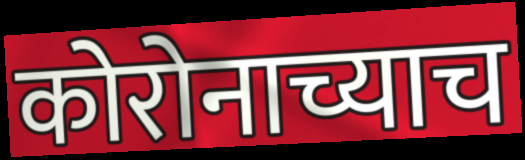
कोरोनाच्याच